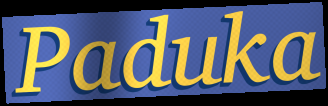
Paduka